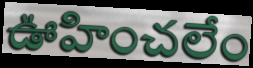
ఊహించలేం